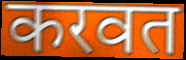
करवत